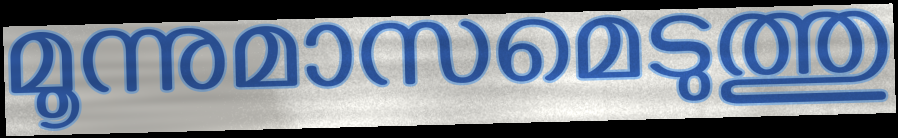
മൂന്നുമാസമെടുത്തു